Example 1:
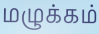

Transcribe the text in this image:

மழுக்கம்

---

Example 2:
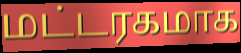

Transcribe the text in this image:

மட்டரகமாக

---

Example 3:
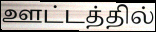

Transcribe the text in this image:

ஊட்டத்தில்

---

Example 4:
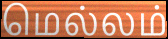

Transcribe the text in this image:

மெல்லம்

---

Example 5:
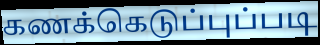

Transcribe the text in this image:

கணக்கெடுப்புப்படி